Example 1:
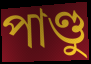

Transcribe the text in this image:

পাণ্ডু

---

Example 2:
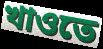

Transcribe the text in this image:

খাওতে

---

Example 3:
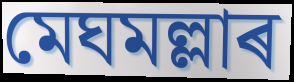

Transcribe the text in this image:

মেঘমল্লাৰ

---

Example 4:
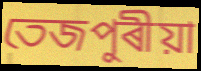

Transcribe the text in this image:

তেজপুৰীয়া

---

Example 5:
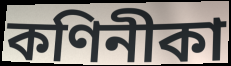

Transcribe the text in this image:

কণিনীকা